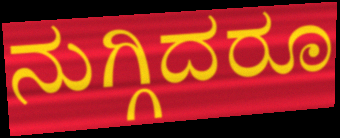
ನುಗ್ಗಿದರೂ